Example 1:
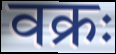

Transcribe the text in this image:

वक्रः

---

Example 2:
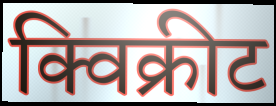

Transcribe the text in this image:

क्विक्रीट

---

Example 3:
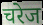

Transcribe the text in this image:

चरेज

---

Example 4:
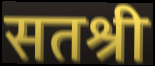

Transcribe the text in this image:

सतश्री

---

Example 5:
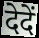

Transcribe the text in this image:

देदें